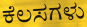
ಕೆಲಸಗಳು